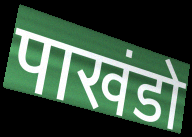
पाखंडो